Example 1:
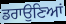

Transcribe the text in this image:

ਡਰਾਉਣਿਆਂ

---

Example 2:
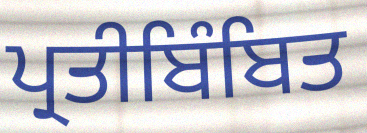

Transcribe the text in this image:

ਪ੍ਰਤੀਬਿੰਬਿਤ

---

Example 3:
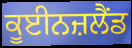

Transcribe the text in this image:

ਕੂਈਨਜ਼ਲੈਂਡ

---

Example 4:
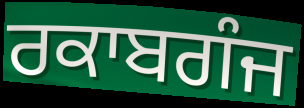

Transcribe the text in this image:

ਰਕਾਬਗੰਜ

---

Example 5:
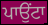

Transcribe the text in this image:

ਪਾਉਂਟਾ